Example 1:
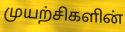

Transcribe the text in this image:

முயற்சிகளின்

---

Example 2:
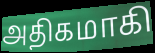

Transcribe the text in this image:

அதிகமாகி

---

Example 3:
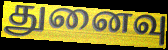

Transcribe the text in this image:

துனைவு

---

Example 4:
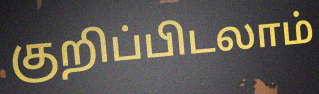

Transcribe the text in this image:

குறிப்பிடலாம்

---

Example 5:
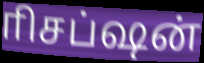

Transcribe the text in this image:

ரிசப்ஷன்